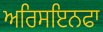
ਅਰਿਸਇਨਫਾ